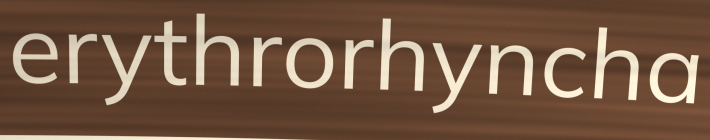
erythrorhyncha